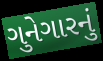
ગુનેગારનું